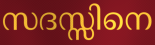
സദസ്സിനെ